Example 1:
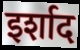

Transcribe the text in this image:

इर्शाद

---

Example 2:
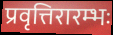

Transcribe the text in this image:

प्रवृत्तिरारम्भः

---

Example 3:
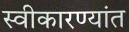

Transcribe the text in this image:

स्वीकारण्यांत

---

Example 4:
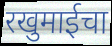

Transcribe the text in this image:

रखुमाईचा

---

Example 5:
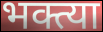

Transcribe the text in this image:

भक्त्या